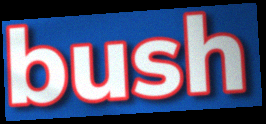
bush